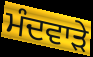
ਮੰਦਵਾੜੇ